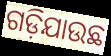
ଗଡ଼ିଯାଉଛ